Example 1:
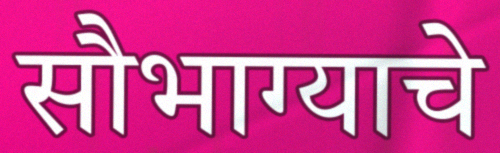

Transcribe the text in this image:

सौभाग्याचे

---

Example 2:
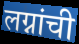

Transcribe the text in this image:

लग्नांची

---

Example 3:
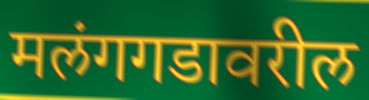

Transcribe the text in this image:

मलंगगडावरील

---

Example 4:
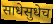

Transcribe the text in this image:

साधेसुधेच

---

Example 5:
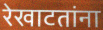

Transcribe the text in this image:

रेखाटतांना